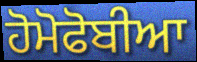
ਹੋਮੋਫੋਬੀਆ